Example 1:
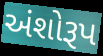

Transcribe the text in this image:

અંશોરૂપ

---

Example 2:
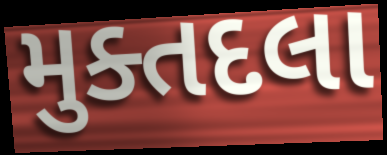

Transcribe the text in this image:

મુક્તદલા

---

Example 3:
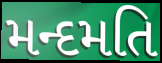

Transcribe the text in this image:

મન્દમતિ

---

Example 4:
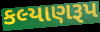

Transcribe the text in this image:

કલ્યાણરૂપ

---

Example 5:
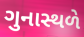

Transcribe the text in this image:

ગુનાસ્થળે